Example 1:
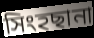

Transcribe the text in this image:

সিংহছানা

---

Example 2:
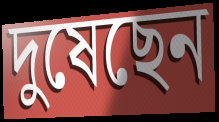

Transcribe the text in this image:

দুষেছেন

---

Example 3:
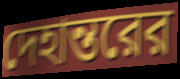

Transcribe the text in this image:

দেহান্তরের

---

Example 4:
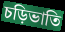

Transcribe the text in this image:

চড়িভাতি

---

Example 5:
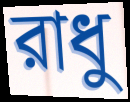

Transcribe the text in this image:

রাধু